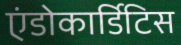
एंडोकार्डिटिस